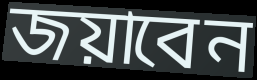
জয়াবেন